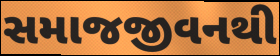
સમાજજીવનથી